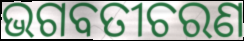
ଭଗବତୀଚରଣ